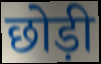
छोड़ी